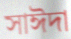
সাঈদা